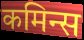
कमिन्स